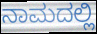
ನಾಮದಲ್ಲಿ